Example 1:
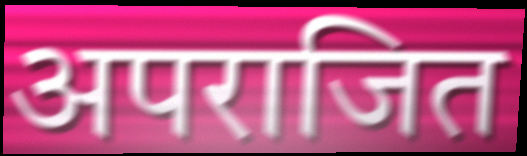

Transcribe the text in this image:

अपराजित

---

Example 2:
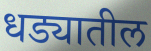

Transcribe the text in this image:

धड्यातील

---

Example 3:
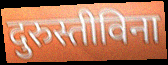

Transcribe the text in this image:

दुरुस्तीविना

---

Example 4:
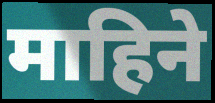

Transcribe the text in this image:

माहिने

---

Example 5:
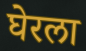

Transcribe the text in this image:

घेरला